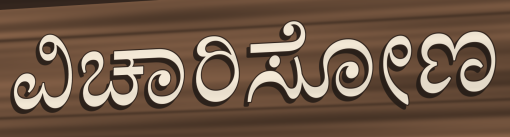
ವಿಚಾರಿಸೋಣ